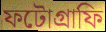
ফটোগ্রাফি